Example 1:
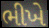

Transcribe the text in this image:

ભીખે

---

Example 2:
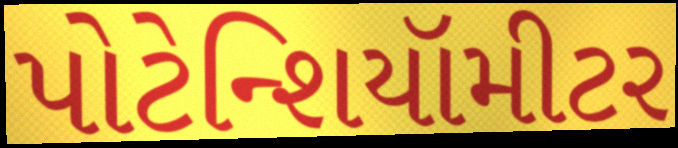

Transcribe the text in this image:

પોટેન્શિયૉમીટર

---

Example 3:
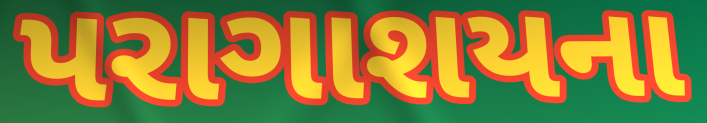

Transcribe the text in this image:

પરાગાશયના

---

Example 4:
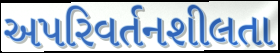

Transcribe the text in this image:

અપરિવર્તનશીલતા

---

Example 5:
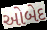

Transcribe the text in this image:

ઓબેદ